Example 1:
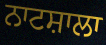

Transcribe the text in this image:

ਨਾਟਸ਼ਾਲਾ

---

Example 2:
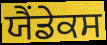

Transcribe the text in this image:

ਯੈਂਡੇਕਸ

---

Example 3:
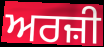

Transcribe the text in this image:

ਅਰਜ਼ੀ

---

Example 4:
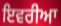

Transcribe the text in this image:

ਇਵਰੀਆ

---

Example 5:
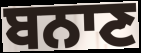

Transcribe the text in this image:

ਬਨਾਣ